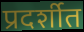
प्रदर्शीत